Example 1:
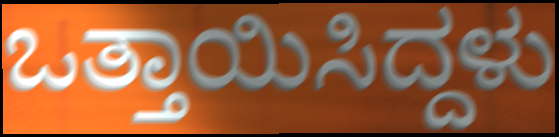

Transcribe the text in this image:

ಒತ್ತಾಯಿಸಿದ್ದಳು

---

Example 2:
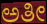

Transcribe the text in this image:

ಅತೀ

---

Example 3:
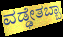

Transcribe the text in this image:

ವಡ್ಢೇತಬ್ಬಾ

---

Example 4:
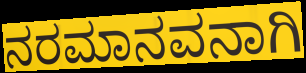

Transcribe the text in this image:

ನರಮಾನವನಾಗಿ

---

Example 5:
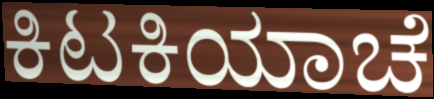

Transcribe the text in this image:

ಕಿಟಕಿಯಾಚೆ